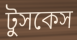
টুসকেস